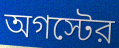
অগস্টের